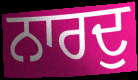
ਨਾਰਦੁ